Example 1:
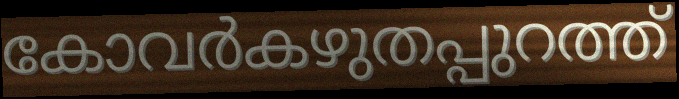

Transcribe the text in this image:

കോവർകഴുതപ്പുറത്ത്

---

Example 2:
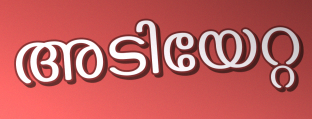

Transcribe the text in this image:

അടിയേറ്റ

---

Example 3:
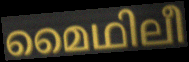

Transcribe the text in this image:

മൈഥിലീ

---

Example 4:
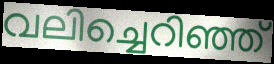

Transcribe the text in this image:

വലിച്ചെറിഞ്ഞ്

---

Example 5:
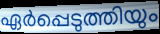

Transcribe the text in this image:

ഏർപ്പെടുത്തിയും